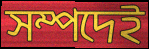
সম্পদেই